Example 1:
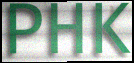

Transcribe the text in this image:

PHK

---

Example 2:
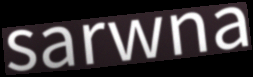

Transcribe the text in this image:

sarwna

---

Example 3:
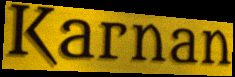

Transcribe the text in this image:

Karnan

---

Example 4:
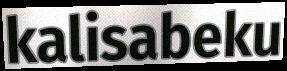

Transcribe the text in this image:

kalisabeku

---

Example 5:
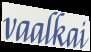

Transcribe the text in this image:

vaalkai